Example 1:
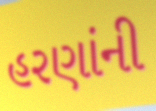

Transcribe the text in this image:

હરણાંની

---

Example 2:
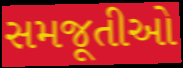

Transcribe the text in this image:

સમજૂતીઓ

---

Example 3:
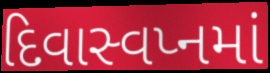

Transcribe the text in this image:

દિવાસ્વપ્નમાં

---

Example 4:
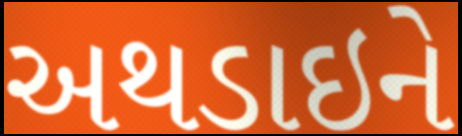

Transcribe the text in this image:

અથડાઇને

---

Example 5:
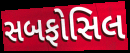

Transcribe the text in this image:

સબફોસિલ